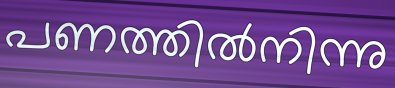
പണത്തിൽനിന്നു